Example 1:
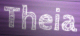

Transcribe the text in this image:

Theia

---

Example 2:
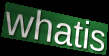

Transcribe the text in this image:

whatis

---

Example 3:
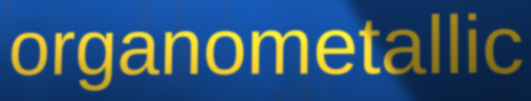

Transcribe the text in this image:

organometallic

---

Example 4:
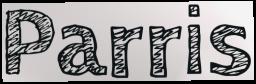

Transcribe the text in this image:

Parris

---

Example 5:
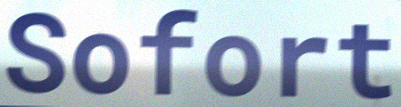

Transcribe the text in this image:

Sofort